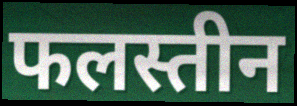
फलस्तीन